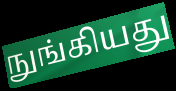
நுங்கியது